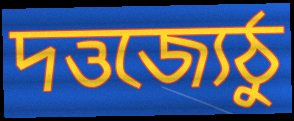
দত্তজ্যেঠু